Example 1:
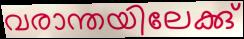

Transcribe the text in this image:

വരാന്തയിലേക്കു്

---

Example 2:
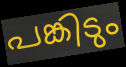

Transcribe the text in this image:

പങ്കിടും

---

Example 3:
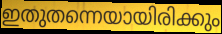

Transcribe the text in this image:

ഇതുതന്നെയായിരിക്കും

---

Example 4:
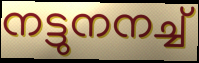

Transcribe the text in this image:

നട്ടുനനച്ച്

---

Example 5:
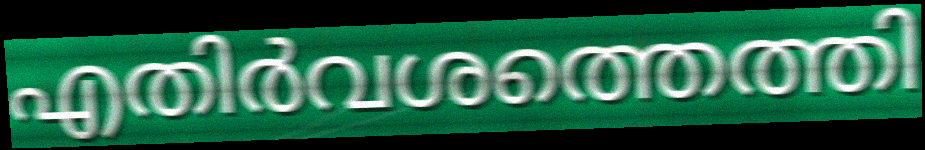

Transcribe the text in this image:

എതിർവശത്തെത്തി